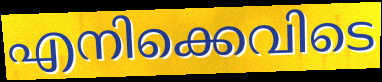
എനിക്കെവിടെ